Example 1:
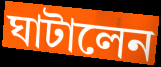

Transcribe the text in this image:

ঘাটালেন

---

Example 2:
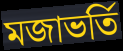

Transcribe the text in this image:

মজাভর্তি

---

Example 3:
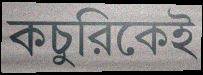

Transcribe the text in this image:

কচুরিকেই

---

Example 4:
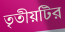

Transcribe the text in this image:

তৃতীয়টির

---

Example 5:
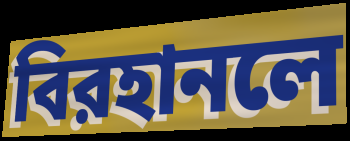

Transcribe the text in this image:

বিরহানলে